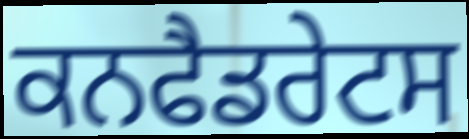
ਕਨਫੈਡਰੇਟਸ